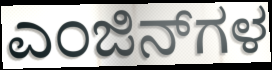
ಎಂಜಿನ್‌ಗಳ